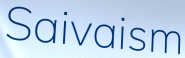
Saivaism